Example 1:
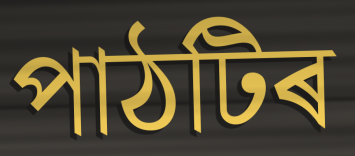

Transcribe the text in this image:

পাঠটিৰ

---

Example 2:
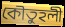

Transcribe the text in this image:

কৌতুহলী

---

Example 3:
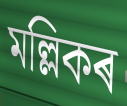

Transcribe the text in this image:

মল্লিকৰ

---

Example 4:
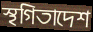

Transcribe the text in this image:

স্থগিতাদেশ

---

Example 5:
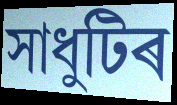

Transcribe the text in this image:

সাধুটিৰ